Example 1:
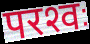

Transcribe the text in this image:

परश्वः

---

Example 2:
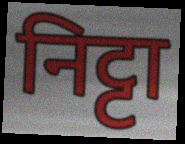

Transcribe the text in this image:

निट्टा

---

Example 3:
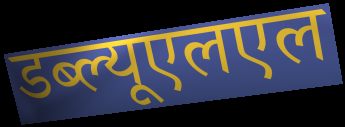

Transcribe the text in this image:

डब्ल्यूएलएल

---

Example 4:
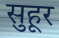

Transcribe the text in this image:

सुहूर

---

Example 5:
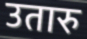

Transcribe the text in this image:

उतारु